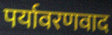
पर्यावरणवाद